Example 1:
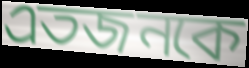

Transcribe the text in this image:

এতজনকে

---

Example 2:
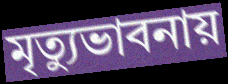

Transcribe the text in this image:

মৃত্যুভাবনায়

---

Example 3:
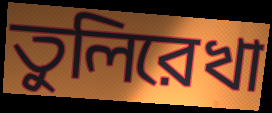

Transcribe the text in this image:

তুলিরেখা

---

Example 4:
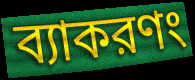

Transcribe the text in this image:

ব্যাকরণং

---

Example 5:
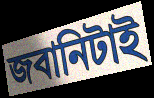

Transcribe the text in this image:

জবানিটাই